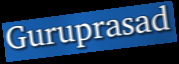
Guruprasad